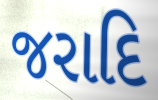
જરાદિ